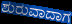
ಶುರುವಾದಾಗ